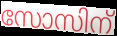
സോസിന്